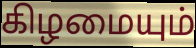
கிழமையும்